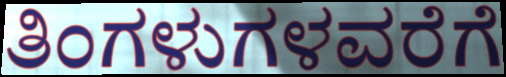
ತಿಂಗಳುಗಳವರೆಗೆ